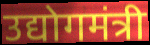
उद्योगमंत्री